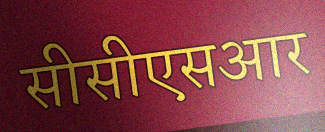
सीसीएसआर